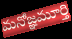
మనోజ్ఞమూర్తి